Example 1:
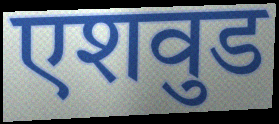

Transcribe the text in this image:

एशवुड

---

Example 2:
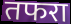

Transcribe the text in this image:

तफरा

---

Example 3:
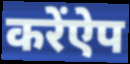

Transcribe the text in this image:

करेंऐप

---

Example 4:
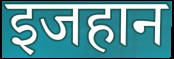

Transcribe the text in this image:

इजहान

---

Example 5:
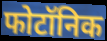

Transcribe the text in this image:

फोटॉनिक